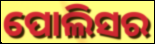
ପୋଲିସର